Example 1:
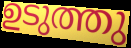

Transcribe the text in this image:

ഉടുത്തു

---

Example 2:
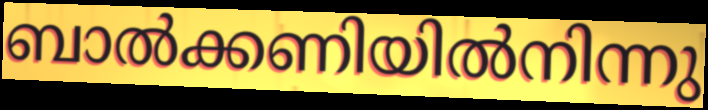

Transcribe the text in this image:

ബാൽക്കണിയിൽനിന്നു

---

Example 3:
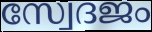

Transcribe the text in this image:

സ്വേദജം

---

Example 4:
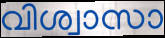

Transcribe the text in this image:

വിശ്വാസാ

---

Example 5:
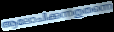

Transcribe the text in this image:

ആലോചിക്കുന്നതുതന്നെ